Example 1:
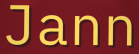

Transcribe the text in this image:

Jann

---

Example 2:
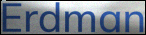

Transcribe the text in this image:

Erdman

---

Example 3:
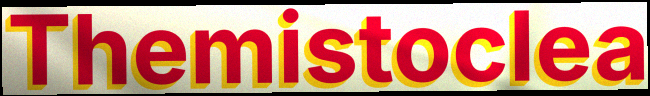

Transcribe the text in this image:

Themistoclea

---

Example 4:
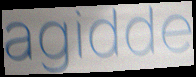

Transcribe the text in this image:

agidde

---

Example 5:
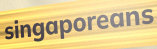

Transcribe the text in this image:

singaporeans